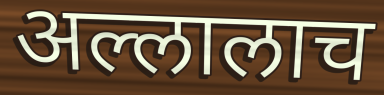
अल्लालाच